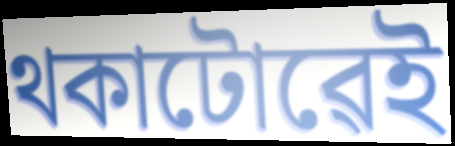
থকাটোৱেই